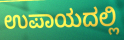
ಉಪಾಯದಲ್ಲಿ